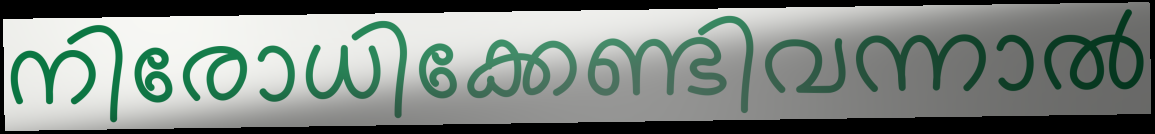
നിരോധിക്കേണ്ടിവന്നാൽ